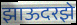
झाऊदरझे